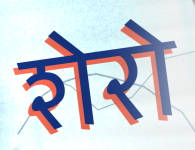
शेरो